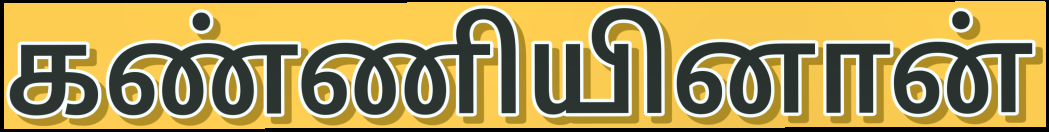
கண்ணியினான்